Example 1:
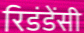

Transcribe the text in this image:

रिडंडेंसी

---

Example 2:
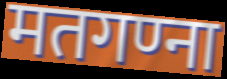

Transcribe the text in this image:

मतगण्ना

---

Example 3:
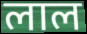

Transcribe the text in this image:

लाल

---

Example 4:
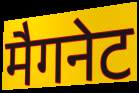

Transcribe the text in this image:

मैगनेट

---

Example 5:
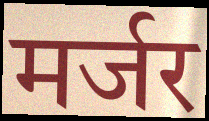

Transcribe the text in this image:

मर्जर